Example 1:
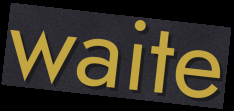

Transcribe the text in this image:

waite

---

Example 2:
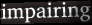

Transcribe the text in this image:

impairing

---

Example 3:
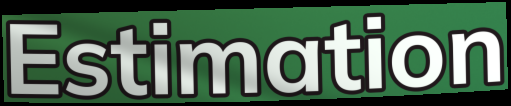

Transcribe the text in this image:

Estimation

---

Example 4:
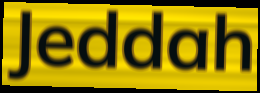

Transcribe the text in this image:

Jeddah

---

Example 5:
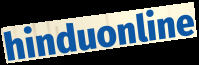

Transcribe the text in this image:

hinduonline